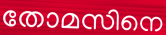
തോമസിനെ